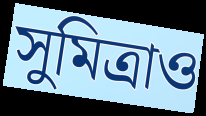
সুমিত্রাও